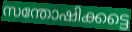
സന്തോഷിക്കട്ടെ